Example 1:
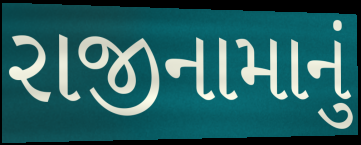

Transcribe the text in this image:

રાજીનામાનું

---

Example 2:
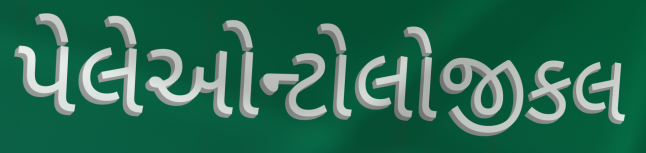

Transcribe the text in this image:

પેલેઓન્ટોલોજીકલ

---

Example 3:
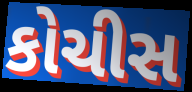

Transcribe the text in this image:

કોચીસ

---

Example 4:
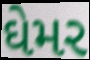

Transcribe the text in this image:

ઘેમર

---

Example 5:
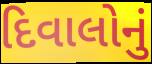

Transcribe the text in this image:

દિવાલોનું